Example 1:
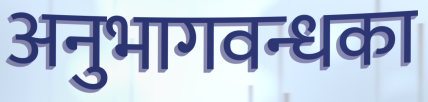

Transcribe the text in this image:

अनुभागवन्धका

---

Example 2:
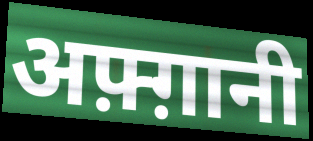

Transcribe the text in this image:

अफ़्ग़ानी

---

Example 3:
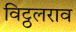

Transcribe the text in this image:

विट्ठलराव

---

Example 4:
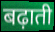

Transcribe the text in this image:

बढ़ाती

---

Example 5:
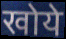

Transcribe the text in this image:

खोये